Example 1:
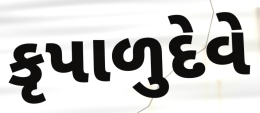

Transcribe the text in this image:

કૃપાળુદેવે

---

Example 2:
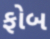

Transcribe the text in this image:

ફોબ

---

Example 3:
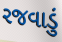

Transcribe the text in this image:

રજવાડું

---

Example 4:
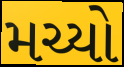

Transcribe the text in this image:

મચ્યો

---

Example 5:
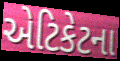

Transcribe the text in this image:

એટિકેટના